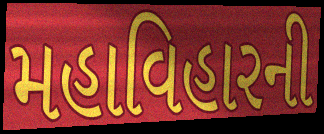
મહાવિહારની